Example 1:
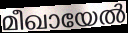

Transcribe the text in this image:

മീഖായേൽ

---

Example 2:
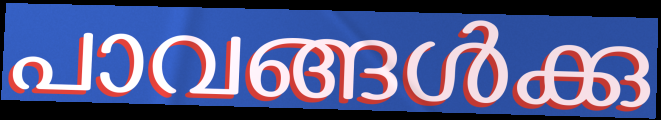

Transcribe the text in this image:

പാവങ്ങൾക്കു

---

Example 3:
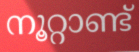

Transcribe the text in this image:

നൂറ്റാണ്ട്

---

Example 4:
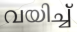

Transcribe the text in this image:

വയിച്ച്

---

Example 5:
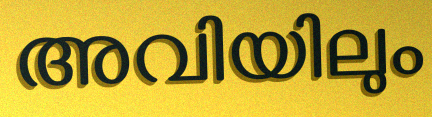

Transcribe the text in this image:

അവിയിലും